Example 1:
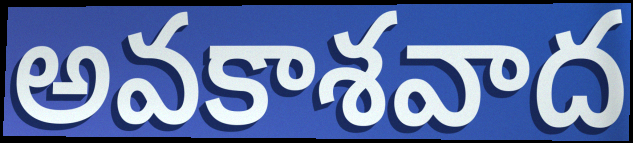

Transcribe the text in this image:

అవకాశవాద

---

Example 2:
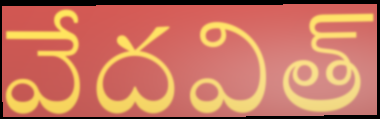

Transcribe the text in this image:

వేదవిత్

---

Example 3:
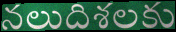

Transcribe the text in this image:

నలుదిశలకు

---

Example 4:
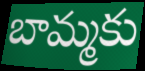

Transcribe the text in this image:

బామ్మకు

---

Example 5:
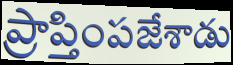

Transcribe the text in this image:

ప్రాప్తింపజేశాడు